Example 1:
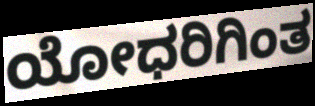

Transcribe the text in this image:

ಯೋಧರಿಗಿಂತ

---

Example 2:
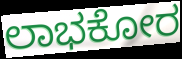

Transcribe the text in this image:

ಲಾಭಕೋರ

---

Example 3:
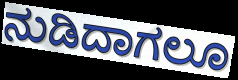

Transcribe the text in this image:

ನುಡಿದಾಗಲೂ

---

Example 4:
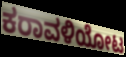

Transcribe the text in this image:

ಕರಾವಳಿಯೋಟ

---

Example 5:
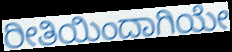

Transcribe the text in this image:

ರೀತಿಯಿಂದಾಗಿಯೇ